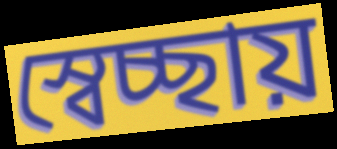
স্বেচ্ছায়